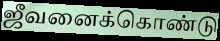
ஜீவனைக்கொண்டு